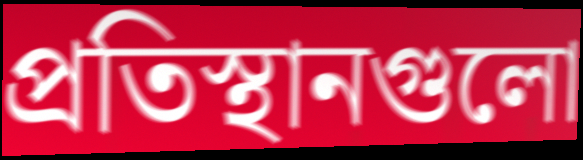
প্রতিস্থানগুলো